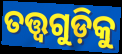
ତତ୍ତ୍ୱଗୁଡ଼ିକୁ